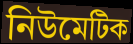
নিউমেটিক